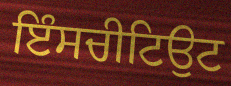
ਇੰਸਚੀਟਿਉਟ